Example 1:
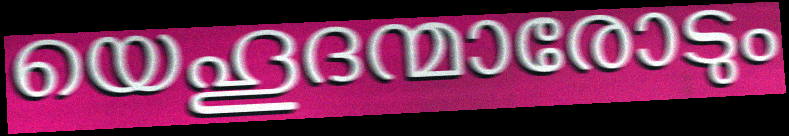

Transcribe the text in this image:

യെഹൂദന്മാരോടും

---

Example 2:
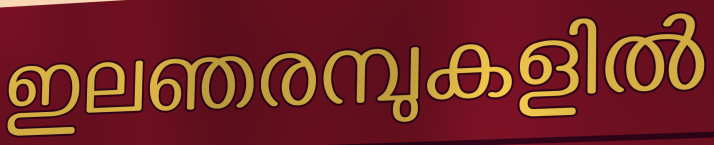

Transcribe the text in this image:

ഇലഞരമ്പുകളിൽ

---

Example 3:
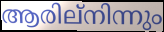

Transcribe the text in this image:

ആരില്നിന്നും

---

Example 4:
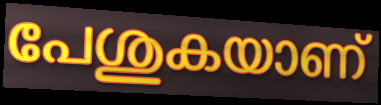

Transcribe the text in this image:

പേശുകയാണ്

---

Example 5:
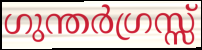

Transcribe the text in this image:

ഗുന്തർഗ്രസ്സ്